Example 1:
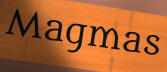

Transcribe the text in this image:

Magmas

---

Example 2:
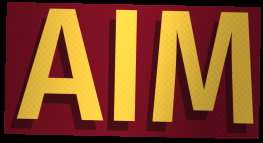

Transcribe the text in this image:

AIM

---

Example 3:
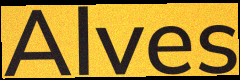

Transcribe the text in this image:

Alves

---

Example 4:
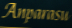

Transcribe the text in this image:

Anparasu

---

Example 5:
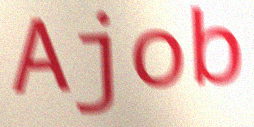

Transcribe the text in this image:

Ajob